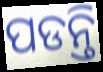
ପଡନ୍ତି